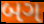
બગ